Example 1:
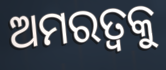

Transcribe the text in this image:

ଅମରତ୍ୱକୁ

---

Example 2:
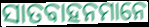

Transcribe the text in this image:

ସାତବାହନମାନେ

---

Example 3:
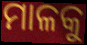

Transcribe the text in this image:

ମାଳକୁ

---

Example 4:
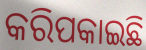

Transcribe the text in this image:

କରିପକାଇଛି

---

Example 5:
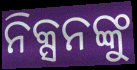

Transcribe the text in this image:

ନିକ୍ସନଙ୍କୁ